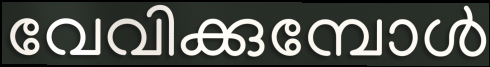
വേവിക്കുമ്പോൾ